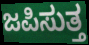
ಜಪಿಸುತ್ತ